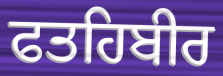
ਫਤਹਿਬੀਰ